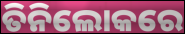
ତିନିଲୋକରେ